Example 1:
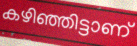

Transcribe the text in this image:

കഴിഞ്ഞിട്ടാണ്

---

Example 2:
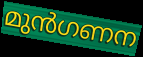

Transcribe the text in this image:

മുൻഗണന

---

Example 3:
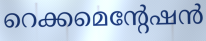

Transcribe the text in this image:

റെക്കമെന്റേഷൻ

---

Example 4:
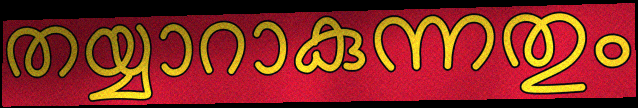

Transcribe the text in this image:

തയ്യാറാകുന്നതും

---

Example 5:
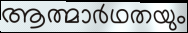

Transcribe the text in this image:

ആത്മാർഥതയും